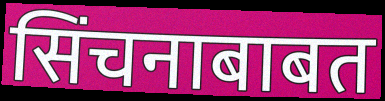
सिंचनाबाबत